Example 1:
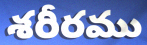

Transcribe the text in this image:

శరీరము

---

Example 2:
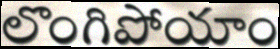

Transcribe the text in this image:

లొంగిపోయాం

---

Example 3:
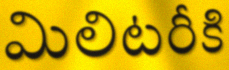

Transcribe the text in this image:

మిలిటరీకి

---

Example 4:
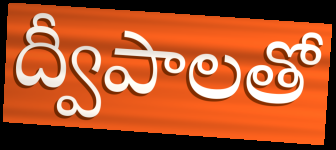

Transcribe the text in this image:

ద్వీపాలతో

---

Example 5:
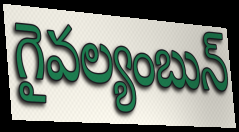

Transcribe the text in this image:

గైవల్యంబున్